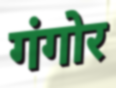
गंगोर